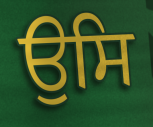
ਉਸਿ